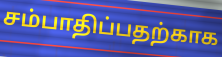
சம்பாதிப்பதற்காக